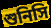
শুনিসি